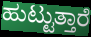
ಹುಟ್ಟುತ್ತಾರೆ